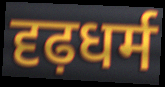
दृढ़धर्म